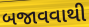
બજાવવાથી